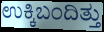
ಉಕ್ಕಿಬಂದಿತ್ತು